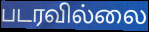
படரவில்லை